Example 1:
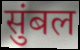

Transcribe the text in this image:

सुंबल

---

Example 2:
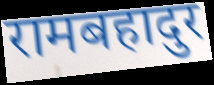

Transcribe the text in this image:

रामबहादुर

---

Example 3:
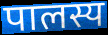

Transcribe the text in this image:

पालस्य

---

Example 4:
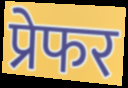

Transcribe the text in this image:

प्रेफर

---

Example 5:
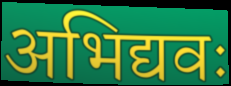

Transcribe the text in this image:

अभिद्यवः